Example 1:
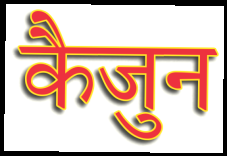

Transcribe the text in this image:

कैजुन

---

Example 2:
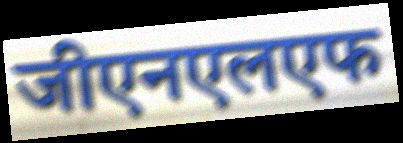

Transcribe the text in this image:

जीएनएलएफ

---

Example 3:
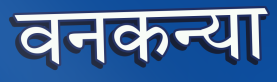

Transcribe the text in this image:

वनकन्या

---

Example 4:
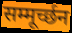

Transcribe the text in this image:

सम्मूर्च्छन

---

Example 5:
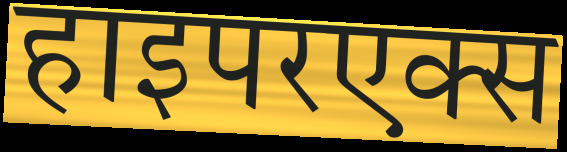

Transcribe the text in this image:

हाइपरएक्स